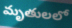
మృతులలో